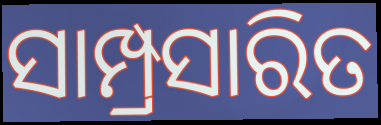
ସାମ୍ପ୍ରସାରିତ